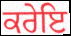
ਕਰੇਇ